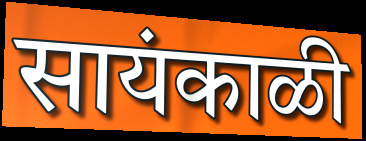
सायंकाळी